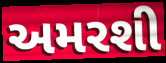
અમરશી